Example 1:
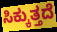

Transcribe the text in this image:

ಸಿಕ್ಕುತ್ತದೆ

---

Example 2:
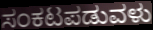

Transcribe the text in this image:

ಸಂಕಟಪಡುವಳು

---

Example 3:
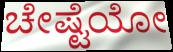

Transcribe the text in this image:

ಚೇಷ್ಟೆಯೋ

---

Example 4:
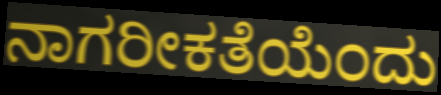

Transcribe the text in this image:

ನಾಗರೀಕತೆಯೆಂದು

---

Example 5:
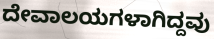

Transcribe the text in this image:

ದೇವಾಲಯಗಳಾಗಿದ್ದವು